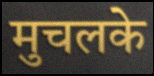
मुचलके